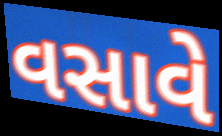
વસાવે